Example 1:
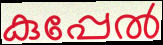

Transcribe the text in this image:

കുപ്പേൽ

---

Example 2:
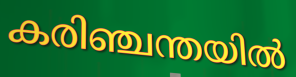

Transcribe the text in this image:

കരിഞ്ചന്തയിൽ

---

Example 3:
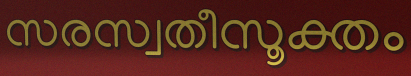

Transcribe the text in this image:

സരസ്വതീസൂക്തം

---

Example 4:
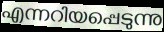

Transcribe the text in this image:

എന്നറിയപ്പെടുന്നു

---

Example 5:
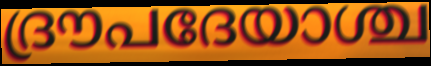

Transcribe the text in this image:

ദ്രൗപദേയാശ്ച